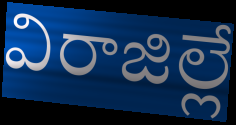
విరాజిల్లే